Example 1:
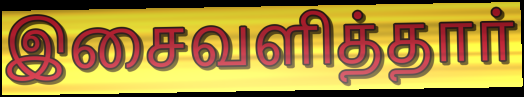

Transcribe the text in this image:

இசைவளித்தார்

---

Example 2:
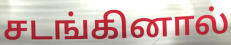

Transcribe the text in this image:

சடங்கினால்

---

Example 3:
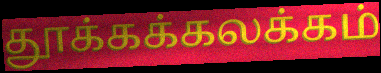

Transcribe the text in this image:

தூக்கக்கலக்கம்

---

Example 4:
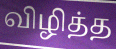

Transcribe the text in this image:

விழித்த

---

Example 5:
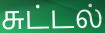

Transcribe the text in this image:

சுட்டல்